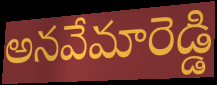
అనవేమారెడ్డి